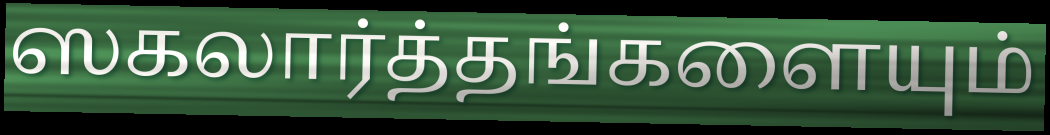
ஸகலார்த்தங்களையும்